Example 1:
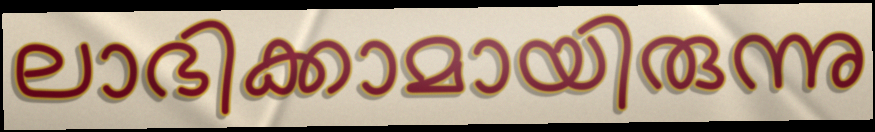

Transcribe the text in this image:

ലാഭിക്കാമായിരുന്നു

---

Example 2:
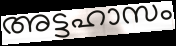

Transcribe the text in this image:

അട്ടഹാസം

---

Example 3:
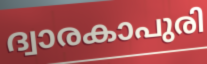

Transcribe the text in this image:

ദ്വാരകാപുരി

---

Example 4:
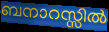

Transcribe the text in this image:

ബനാറസ്സിൽ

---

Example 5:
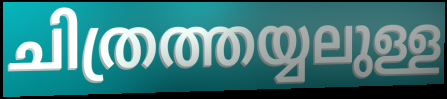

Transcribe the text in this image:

ചിത്രത്തയ്യലുള്ള